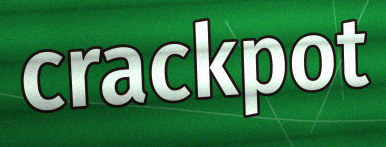
crackpot